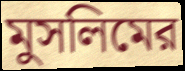
মুসলিমের